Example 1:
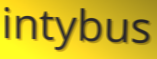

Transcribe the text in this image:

intybus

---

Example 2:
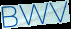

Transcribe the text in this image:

BWV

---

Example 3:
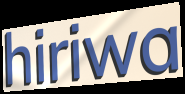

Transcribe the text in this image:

hiriwa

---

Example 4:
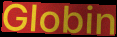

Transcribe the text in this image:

Globin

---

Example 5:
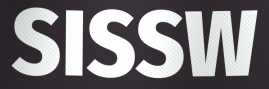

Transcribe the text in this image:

SISSW